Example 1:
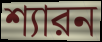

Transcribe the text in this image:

শ্যারন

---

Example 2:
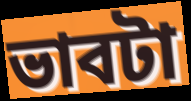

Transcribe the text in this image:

ভাবটা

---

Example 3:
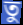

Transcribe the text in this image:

তু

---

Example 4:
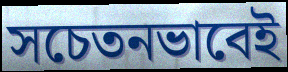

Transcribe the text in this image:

সচেতনভাবেই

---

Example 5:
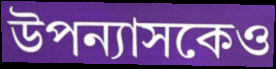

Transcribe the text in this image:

উপন্যাসকেও